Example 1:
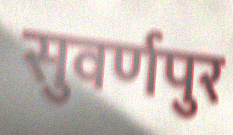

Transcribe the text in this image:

सुवर्णपुर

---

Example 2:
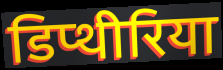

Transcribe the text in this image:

डिप्थीरिया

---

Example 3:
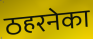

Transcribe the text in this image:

ठहरनेका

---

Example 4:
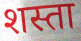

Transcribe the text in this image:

शस्ता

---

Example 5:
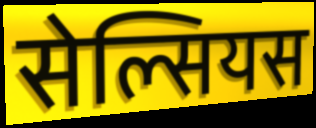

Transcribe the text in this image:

सेल्सियस